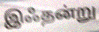
இஃதன்று